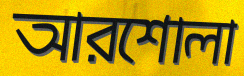
আরশোলা